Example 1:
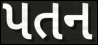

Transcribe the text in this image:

પતન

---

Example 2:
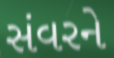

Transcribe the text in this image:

સંવરને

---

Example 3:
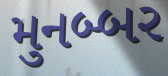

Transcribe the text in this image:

મુનબ્બર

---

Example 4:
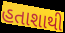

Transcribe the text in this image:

હતાશાથી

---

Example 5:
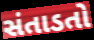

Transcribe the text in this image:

સંતાડતો